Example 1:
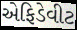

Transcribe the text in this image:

એફિડેવીટ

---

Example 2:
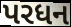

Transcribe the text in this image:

પરધન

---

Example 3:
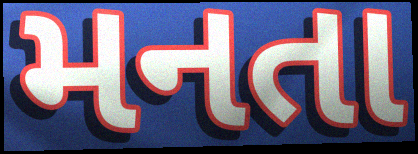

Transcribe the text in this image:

મનતા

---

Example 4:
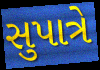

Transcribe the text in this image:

સુપાત્રે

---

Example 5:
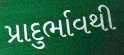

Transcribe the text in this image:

પ્રાદુર્ભાવથી